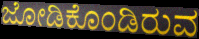
ಜೋಡಿಕೊಂಡಿರುವ